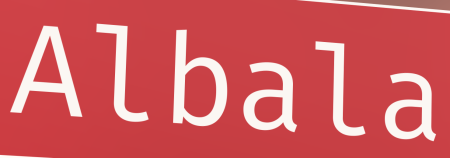
Albala